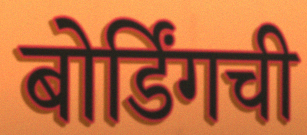
बोर्डिंगची